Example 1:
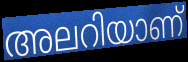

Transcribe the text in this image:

അലറിയാണ്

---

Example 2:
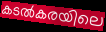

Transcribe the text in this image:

കടൽകരയിലെ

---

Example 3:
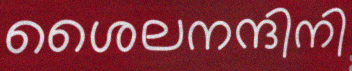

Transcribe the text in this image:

ശൈലനന്ദിനി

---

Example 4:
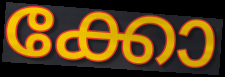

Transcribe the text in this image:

ക്കോ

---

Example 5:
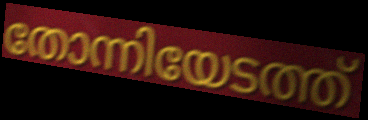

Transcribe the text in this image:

തോന്നിയേടത്ത്